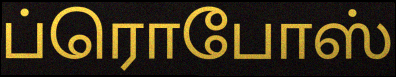
ப்ரொபோஸ்